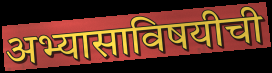
अभ्यासाविषयीची